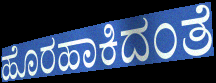
ಹೊರಹಾಕಿದಂತೆ